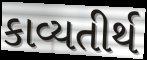
કાવ્યતીર્થ